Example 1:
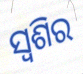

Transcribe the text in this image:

ସ୍ଵଶିର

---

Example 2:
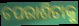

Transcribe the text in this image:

ଚପରାଶିଟାକୁ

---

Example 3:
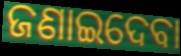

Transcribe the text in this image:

ଜଣାଇଦେବା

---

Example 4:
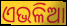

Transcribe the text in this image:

ଏଭଳିଆ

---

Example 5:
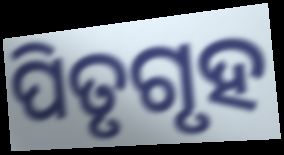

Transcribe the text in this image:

ପିତୃଗୃହ